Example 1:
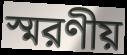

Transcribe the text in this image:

স্মরণীয়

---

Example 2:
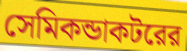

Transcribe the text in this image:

সেমিকন্ডাকটরের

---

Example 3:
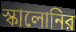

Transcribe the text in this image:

স্কালোনির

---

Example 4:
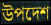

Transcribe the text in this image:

উপদেশ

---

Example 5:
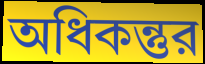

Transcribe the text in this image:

অধিকন্তুর